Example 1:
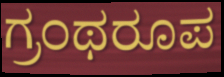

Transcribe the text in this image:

ಗ್ರಂಥರೂಪ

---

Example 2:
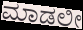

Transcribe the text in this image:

ಮಾಡಲೀ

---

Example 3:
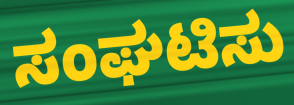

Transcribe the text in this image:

ಸಂಘಟಿಸು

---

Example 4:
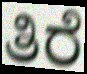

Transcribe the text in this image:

ತಿರೆ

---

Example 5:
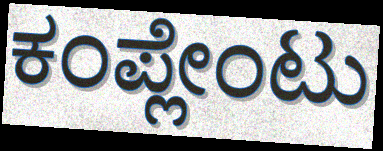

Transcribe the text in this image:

ಕಂಪ್ಲೇಂಟು